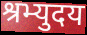
श्रभ्युदय